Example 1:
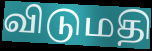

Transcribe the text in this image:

விடுமதி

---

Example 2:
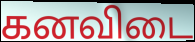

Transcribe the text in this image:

கனவிடை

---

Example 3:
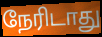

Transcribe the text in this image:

நேரிடாது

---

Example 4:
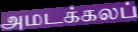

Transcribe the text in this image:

அமடக்கலப்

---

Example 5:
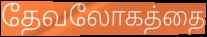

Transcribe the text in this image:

தேவலோகத்தை